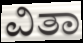
ವಿತಾ